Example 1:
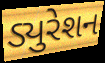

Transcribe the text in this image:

ડ્યુરેશન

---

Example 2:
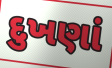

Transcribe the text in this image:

દુખણાં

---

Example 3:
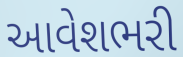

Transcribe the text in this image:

આવેશભરી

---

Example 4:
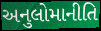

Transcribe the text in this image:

અનુલોમાનીતિ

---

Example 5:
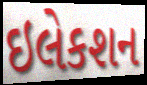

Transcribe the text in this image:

ઇલેકશન